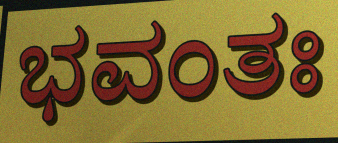
ಭವಂತಃ